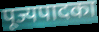
पूज्यपादका